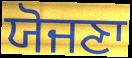
ਯੋਜਣਾ